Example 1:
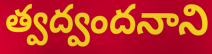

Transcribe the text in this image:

త్వద్వందనాని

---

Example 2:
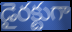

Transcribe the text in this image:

డైరక్టుగా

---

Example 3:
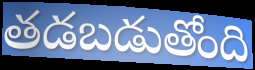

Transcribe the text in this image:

తడబడుతోంది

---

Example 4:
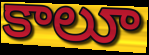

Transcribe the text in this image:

కాలూ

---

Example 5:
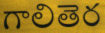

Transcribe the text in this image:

గాలితెర